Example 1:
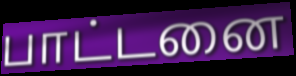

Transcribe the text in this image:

பாட்டனை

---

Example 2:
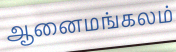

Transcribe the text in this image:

ஆனைமங்கலம்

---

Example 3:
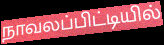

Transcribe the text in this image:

நாவலப்பிட்டியில்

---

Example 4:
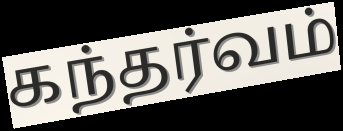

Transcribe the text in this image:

கந்தர்வம்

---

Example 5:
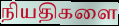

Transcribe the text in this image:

நியதிகளை